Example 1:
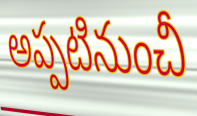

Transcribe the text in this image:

అప్పటినుంచీ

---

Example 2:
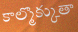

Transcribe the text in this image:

కాల్మొక్కుతా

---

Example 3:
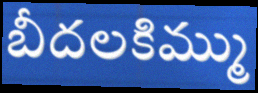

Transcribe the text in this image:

బీదలకిమ్ము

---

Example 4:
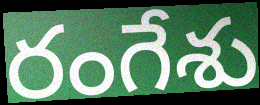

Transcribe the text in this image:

రంగేశు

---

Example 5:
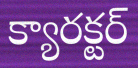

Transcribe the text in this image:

క్యారక్టర్